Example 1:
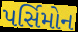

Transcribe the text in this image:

પર્સિમોન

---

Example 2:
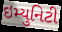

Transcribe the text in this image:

ઇમ્યુનિટી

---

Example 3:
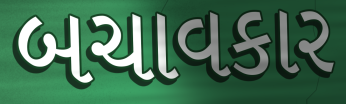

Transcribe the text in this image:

બચાવકાર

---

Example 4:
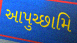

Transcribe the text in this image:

આપુચ્છામિ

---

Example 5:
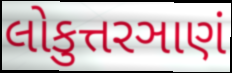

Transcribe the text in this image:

લોકુત્તરઞાણં